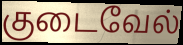
குடைவேல்